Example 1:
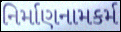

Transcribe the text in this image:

નિર્માણનામકર્મ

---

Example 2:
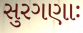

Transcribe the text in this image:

સુરગણાઃ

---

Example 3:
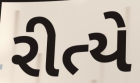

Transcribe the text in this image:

રીત્યે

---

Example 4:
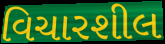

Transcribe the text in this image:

વિચારશીલ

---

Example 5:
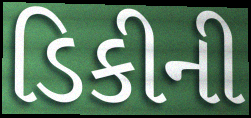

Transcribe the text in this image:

ડિકીની